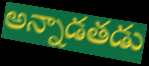
అన్నాడతడు